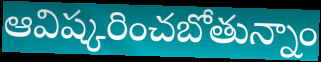
ఆవిష్కరించబోతున్నాం